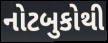
નોટબુકોથી